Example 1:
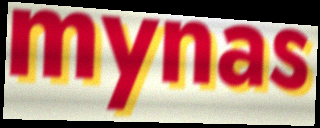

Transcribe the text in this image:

mynas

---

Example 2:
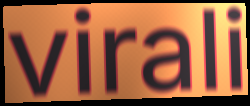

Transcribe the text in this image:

virali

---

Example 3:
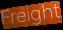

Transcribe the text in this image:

Freight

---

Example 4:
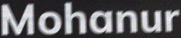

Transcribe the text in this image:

Mohanur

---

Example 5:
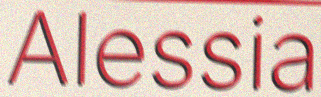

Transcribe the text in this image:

Alessia